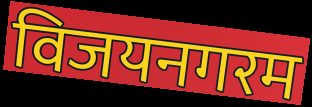
विजयनगरम